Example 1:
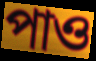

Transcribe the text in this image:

পাও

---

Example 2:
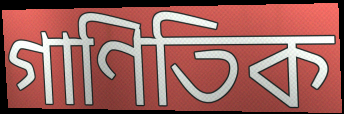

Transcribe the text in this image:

গাণিতিক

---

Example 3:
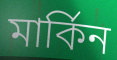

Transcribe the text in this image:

মাৰ্কিন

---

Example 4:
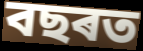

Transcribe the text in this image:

বছৰত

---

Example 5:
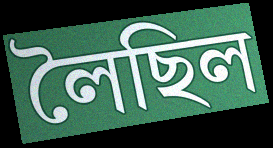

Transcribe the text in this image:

লৈছিল